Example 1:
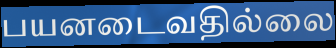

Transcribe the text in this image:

பயனடைவதில்லை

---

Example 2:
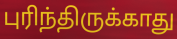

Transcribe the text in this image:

புரிந்திருக்காது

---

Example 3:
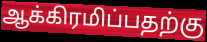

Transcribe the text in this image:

ஆக்கிரமிப்பதற்கு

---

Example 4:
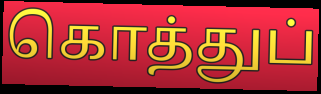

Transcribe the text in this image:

கொத்துப்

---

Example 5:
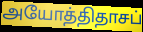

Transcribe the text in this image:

அயோத்திதாசப்